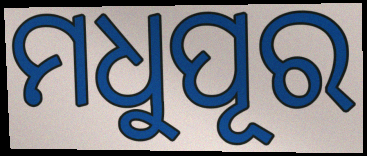
ମଧୁପୂର